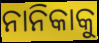
ନାନିକାକୁ